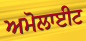
ਅਮੋਲਾਈਟ